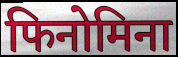
फिनोमिना